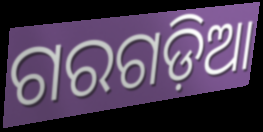
ଗରଗଡ଼ିଆ